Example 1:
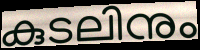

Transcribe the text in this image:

കുടലിനും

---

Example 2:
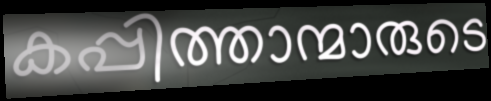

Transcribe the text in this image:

കപ്പിത്താന്മാരുടെ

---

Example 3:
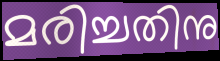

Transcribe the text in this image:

മരിച്ചതിനു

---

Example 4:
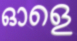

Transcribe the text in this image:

ഓളെ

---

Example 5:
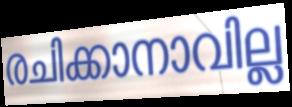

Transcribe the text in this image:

രചിക്കാനാവില്ല